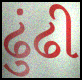
ઢુંઢી